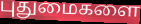
புதுமைகளை